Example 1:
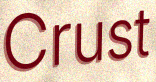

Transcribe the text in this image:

Crust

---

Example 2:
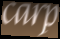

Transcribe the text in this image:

carp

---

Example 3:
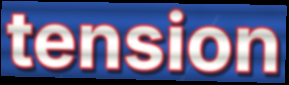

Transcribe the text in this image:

tension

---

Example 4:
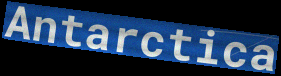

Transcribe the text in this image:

Antarctica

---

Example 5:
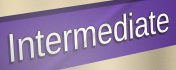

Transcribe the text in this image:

Intermediate